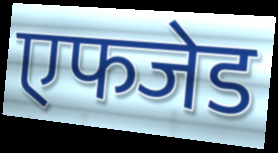
एफजेड